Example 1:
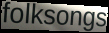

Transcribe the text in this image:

folksongs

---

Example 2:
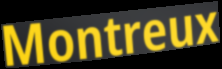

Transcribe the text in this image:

Montreux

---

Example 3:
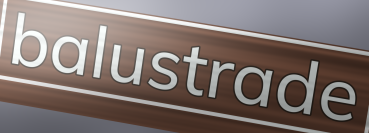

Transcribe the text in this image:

balustrade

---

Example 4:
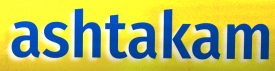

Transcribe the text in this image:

ashtakam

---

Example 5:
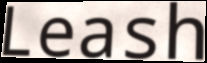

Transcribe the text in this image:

Leash